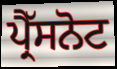
ਪ੍ਰੈੱਸਨੋਟ